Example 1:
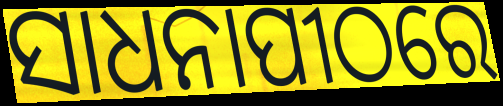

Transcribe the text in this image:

ସାଧନାପୀଠରେ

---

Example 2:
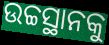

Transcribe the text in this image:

ଉଚ୍ଚସ୍ଥାନକୁ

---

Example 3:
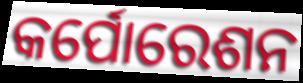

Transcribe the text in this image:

କର୍ପୋରେଶନ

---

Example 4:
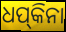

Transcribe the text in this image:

ଧପ୍‍କିନା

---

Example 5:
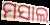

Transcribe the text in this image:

ମସାଲ